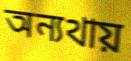
অন্যথায়